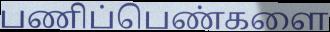
பணிப்பெண்களை